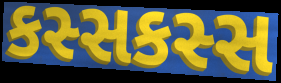
કસ્સકસ્સ